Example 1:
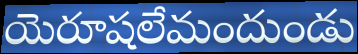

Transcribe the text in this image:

యెరూషలేమందుండు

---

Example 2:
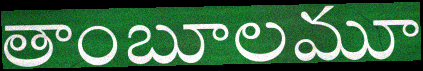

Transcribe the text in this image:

తాంబూలమూ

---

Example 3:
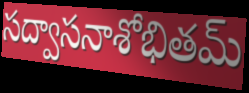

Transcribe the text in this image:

సద్వాసనాశోభితమ్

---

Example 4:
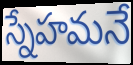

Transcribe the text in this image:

స్నేహమనే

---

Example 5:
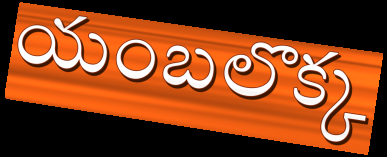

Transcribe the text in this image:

యంబలొక్క